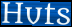
Huts